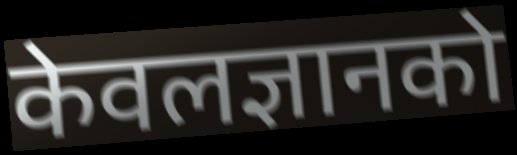
केवलज्ञानको